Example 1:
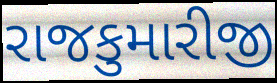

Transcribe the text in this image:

રાજકુમારીજી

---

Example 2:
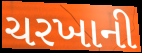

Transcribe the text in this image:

ચરખાની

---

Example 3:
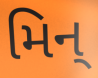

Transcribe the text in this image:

મિન્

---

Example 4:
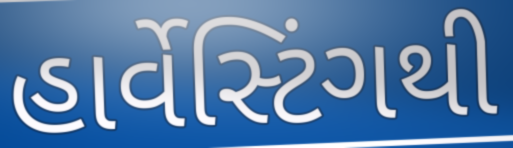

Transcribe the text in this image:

હાર્વેસ્ટિંગથી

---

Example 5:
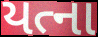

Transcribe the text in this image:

યત્ના